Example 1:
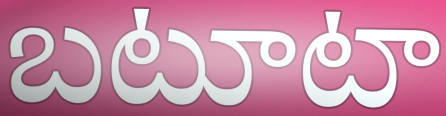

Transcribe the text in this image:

బటూటా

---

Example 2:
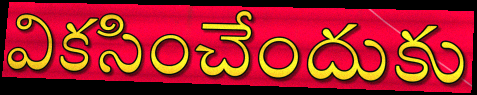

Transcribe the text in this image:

వికసించేందుకు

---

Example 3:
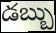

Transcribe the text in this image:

డబ్బు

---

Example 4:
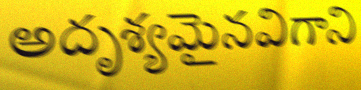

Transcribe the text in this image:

అదృశ్యమైనవిగాని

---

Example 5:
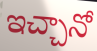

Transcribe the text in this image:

ఇచ్చానో